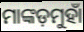
ମାଙ୍କଡ଼ମୁହାଁ